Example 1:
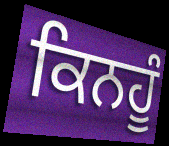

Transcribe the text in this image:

ਕਿਨਹੂੰ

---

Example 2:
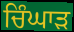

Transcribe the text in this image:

ਚਿੰਘਾੜ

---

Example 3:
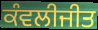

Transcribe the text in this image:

ਕੰਵਲੀਜੀਤ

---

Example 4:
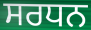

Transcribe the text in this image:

ਸਰਧਨ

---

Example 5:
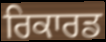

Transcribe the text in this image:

ਰਿਕਾਰਡ